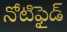
నోటిఫైడ్